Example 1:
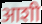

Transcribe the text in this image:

आशी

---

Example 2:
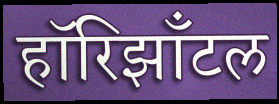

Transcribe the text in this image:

हॉरिझाँटल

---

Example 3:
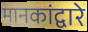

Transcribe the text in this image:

मानकांद्वारे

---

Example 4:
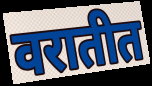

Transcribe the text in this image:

वरातीत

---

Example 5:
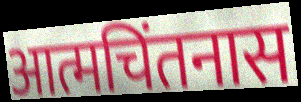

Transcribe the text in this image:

आत्मचिंतनास